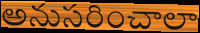
అనుసరించాలా